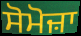
ਸੋਮੋਜ਼ਾ